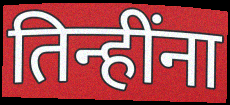
तिन्हींना